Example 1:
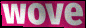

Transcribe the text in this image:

wove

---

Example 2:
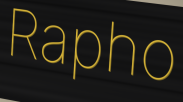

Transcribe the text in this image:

Rapho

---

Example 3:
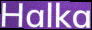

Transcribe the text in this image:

Halka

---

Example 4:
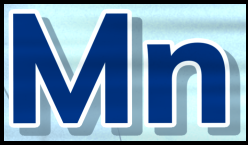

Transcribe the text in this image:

Mn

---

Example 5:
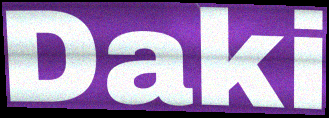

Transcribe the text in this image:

Daki